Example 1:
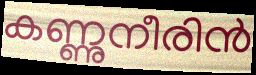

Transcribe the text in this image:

കണ്ണുനീരിൻ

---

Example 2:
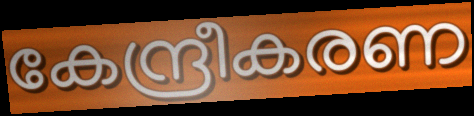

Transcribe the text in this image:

കേന്ദ്രീകരണ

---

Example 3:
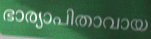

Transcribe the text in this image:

ഭാര്യാപിതാവായ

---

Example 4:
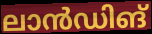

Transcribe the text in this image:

ലാൻഡിങ്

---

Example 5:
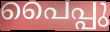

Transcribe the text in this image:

പൈപ്പു